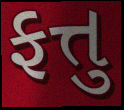
ફત્તુ